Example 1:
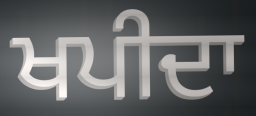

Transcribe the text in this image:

ਖਪੀਦਾ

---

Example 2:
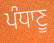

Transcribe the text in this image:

ਪੰਧਾਣੂ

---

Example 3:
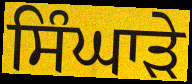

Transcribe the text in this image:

ਸਿੰਘਾੜੇ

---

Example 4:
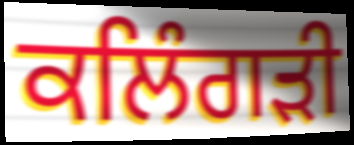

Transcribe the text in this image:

ਕਲਿੰਗੜੀ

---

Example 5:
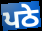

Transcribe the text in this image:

ਪਠੇ